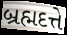
બ્રહ્મદત્તે